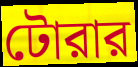
টোরার